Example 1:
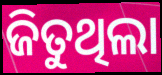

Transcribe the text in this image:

ଜିତୁଥିଲା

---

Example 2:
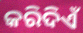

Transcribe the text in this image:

କରିଦିଏଁ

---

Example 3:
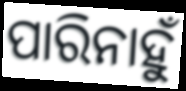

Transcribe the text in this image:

ପାରିନାହୁଁ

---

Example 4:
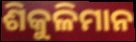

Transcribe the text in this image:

ଶିକୁଳିମାନ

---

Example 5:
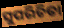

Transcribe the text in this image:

ସୁପରିଚିତା